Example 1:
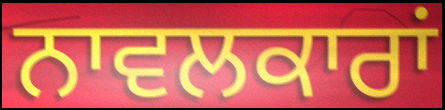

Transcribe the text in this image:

ਨਾਵਲਕਾਰਾਂ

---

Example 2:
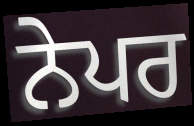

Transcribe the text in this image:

ਨੇਪਰ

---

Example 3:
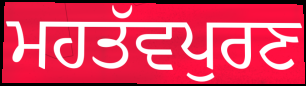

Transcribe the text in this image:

ਮਹਤੱਵਪੁਰਣ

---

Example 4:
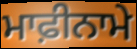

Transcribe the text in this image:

ਮਾਫ਼ੀਨਾਮੇ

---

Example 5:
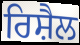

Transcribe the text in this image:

ਰਿਸ਼ੈਲ